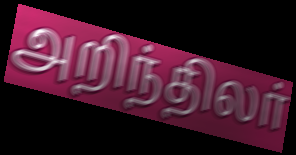
அறிந்திலர்